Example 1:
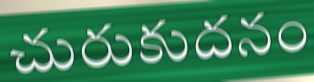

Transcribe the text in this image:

చురుకుదనం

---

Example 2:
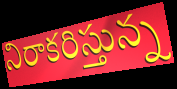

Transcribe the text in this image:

నిరాకరిస్తున్న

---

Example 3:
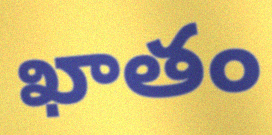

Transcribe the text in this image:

ఖాతం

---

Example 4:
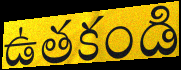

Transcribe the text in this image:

ఉతకండి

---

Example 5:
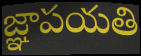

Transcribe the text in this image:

జ్ఞాపయతి